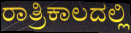
ರಾತ್ರಿಕಾಲದಲ್ಲಿ